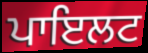
ਪਾਇਲਟ